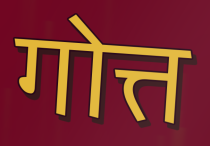
गोत्त